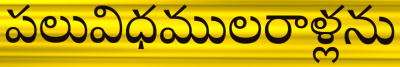
పలువిధములరాళ్లను